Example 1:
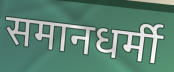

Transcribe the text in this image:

समानधर्मी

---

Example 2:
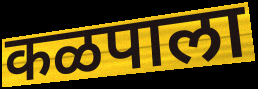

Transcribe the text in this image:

कळपाला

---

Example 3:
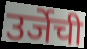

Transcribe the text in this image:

उर्जेची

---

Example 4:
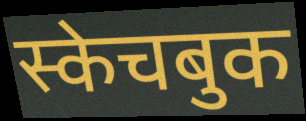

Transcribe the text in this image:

स्केचबुक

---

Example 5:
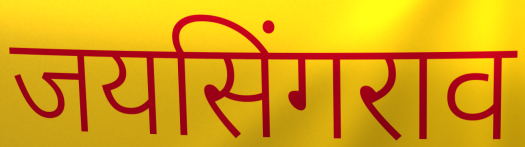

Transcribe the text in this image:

जयसिंगराव